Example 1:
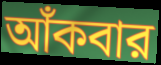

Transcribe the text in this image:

আঁকবার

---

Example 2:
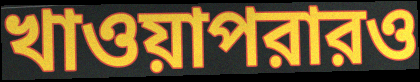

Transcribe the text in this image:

খাওয়াপরারও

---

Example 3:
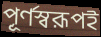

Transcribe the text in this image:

পূর্ণস্বরূপই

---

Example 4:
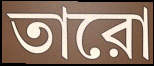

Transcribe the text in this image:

তারো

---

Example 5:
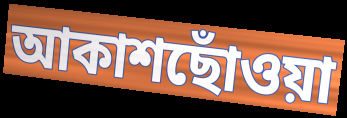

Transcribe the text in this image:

আকাশছোঁওয়া